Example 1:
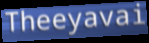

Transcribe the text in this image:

Theeyavai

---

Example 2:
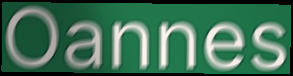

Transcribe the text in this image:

Oannes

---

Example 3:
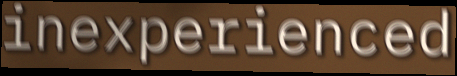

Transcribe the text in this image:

inexperienced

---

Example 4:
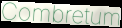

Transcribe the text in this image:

Combretum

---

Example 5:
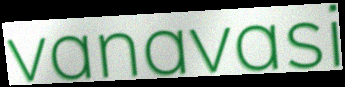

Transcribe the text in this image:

vanavasi